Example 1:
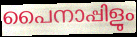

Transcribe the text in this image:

പൈനാപ്പിളും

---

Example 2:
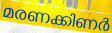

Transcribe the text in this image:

മരണക്കിണർ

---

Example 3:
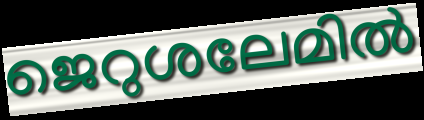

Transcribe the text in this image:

ജെറുശലേമിൽ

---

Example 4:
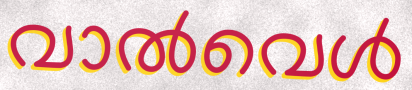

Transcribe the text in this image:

വാൽവെൾ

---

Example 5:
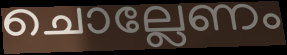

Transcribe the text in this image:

ചൊല്ലേണം